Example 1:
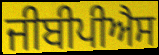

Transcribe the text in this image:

ਜੀਬੀਪੀਐਸ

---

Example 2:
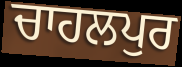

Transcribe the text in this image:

ਚਾਹਲਪੁਰ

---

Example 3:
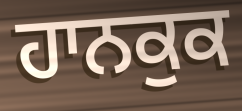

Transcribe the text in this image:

ਹਾਨਕੁਕ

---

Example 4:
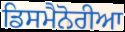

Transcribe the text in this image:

ਡਿਸਮੈਨੋਰੀਆ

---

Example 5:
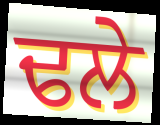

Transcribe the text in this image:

ਢਲੇ